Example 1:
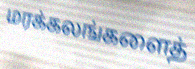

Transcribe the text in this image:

மரக்கலங்களைத்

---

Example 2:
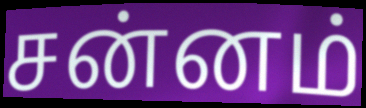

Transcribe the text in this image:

சன்னம்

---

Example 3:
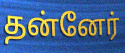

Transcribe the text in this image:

தன்னேர்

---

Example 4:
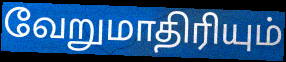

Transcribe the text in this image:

வேறுமாதிரியும்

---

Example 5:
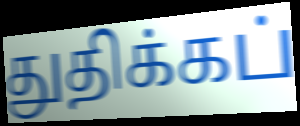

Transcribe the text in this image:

துதிக்கப்